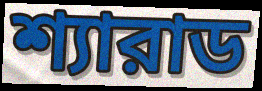
শ্যারাড